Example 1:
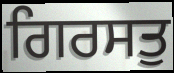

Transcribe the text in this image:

ਗਿਰਸਤੁ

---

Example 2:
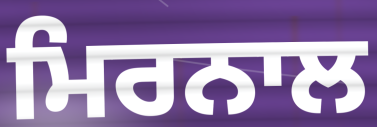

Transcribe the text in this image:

ਮਿਰਨਾਲ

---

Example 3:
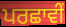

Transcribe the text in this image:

ਪਰਛਾਵੀਂ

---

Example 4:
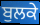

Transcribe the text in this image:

ਬੁਲਕੇ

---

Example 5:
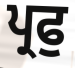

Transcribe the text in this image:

ਪ੍ਰਫੁ